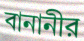
বানানীর